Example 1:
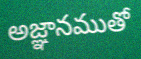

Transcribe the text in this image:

అజ్ఞానముతో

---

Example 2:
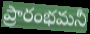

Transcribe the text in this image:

ప్రారంభమనీ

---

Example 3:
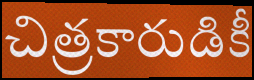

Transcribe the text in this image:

చిత్రకారుడికీ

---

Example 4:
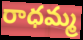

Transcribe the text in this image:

రాధమ్మ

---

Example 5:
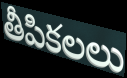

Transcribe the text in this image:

తీపికలలు